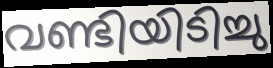
വണ്ടിയിടിച്ചു